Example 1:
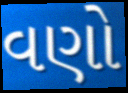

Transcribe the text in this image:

વણો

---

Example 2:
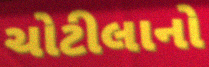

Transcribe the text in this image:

ચોટીલાનો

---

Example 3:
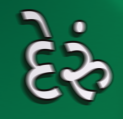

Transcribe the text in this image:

દેરું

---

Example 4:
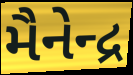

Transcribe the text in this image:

મૈનેન્દ્ર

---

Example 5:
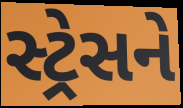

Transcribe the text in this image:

સ્ટ્રેસને